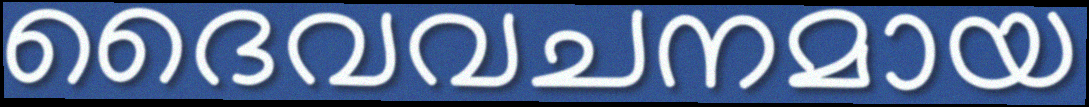
ദൈവവചനമായ